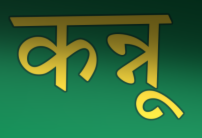
कन्नू